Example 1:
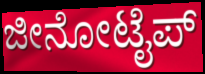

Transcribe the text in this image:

ಜೀನೋಟೈಪ್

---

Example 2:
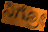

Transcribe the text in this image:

ನಿಗ್ರೋ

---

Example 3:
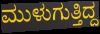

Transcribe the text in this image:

ಮುಳುಗುತ್ತಿದ್ದ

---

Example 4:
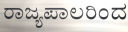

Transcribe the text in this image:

ರಾಜ್ಯಪಾಲರಿಂದ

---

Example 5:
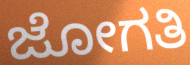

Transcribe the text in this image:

ಜೋಗತಿ